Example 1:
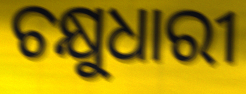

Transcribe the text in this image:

ଚକ୍ଷୁଧାରୀ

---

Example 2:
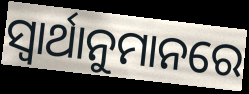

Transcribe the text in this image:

ସ୍ୱାର୍ଥାନୁମାନରେ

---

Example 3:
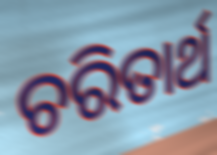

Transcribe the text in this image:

ଚରିତାର୍ଥ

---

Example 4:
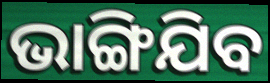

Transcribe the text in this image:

ଭାଙ୍ଗିଯିବ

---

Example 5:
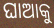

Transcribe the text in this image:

ଘାଆକୁ